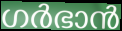
ഗർഭാൻ